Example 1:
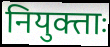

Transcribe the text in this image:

नियुक्ताः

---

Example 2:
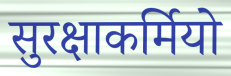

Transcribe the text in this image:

सुरक्षाकर्मियो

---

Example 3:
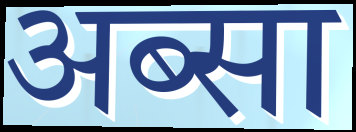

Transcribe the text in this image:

अब्सा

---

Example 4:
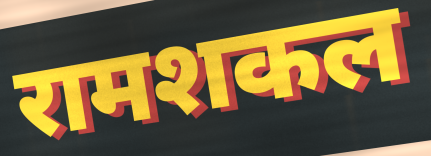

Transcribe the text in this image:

रामशकल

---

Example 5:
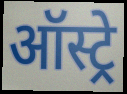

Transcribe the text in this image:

ऑस्ट्रे